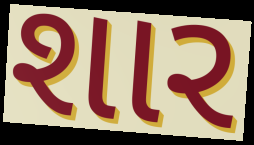
શાર